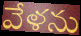
వేళను